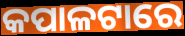
କପାଳଟାରେ